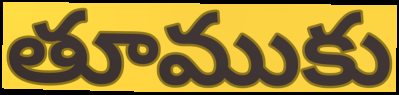
తూముకు